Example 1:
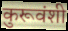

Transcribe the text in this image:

कुरूवंशी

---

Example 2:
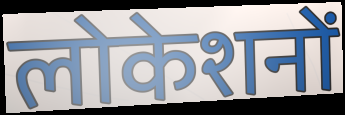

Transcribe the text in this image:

लोकेशनों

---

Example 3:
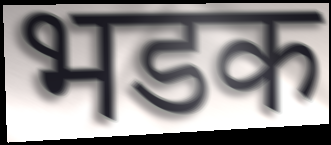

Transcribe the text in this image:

भडक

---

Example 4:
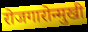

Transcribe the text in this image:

रोजगारोन्मुखी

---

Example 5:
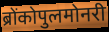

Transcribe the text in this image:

ब्रोंकोपुलमोनरी